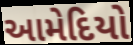
આમેદિયો